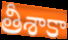
తీశాకా